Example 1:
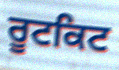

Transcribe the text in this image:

ਰੂਟਕਿਟ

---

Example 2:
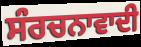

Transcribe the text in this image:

ਸੰਰਚਨਾਵਾਦੀ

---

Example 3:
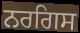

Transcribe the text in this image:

ਨਰਗਿਸ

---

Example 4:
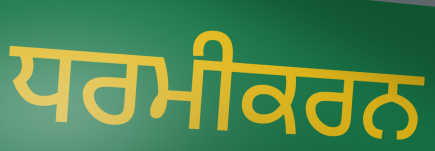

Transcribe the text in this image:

ਧਰਮੀਕਰਨ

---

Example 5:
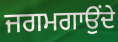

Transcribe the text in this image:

ਜਗਮਗਾਉਂਦੇ